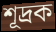
শূদ্ৰক